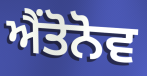
ਐਂਤੋਨੋਵ